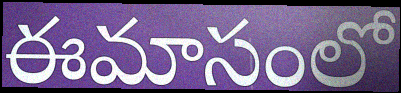
ఈమాసంలో